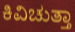
ಕಿವಿಚುತ್ತಾ